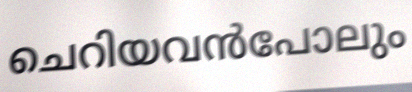
ചെറിയവൻപോലും